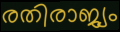
രതിരാജ്യം